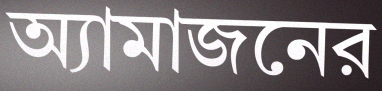
অ্যামাজনের